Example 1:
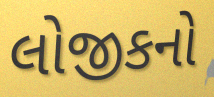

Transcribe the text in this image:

લોજીકનો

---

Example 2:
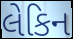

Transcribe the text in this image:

લેકિન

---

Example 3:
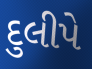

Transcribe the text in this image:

દુલીપે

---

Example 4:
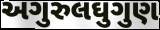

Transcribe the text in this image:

અગુરુલઘુગુણ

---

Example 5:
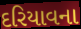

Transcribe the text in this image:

દરિયાવના